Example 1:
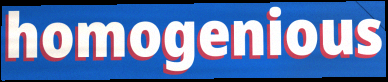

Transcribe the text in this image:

homogenious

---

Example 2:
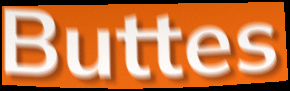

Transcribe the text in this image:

Buttes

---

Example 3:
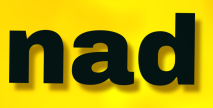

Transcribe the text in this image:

nad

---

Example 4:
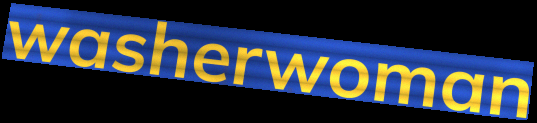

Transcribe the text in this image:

washerwoman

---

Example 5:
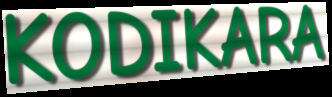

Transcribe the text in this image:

KODIKARA